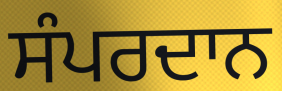
ਸੰਪਰਦਾਨ